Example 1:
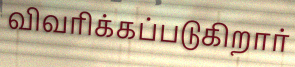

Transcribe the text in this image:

விவரிக்கப்படுகிறார்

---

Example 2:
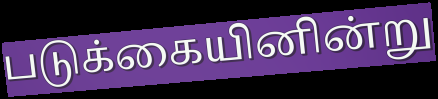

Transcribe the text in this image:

படுக்கையினின்று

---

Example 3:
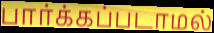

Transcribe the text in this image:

பார்க்கப்படாமல்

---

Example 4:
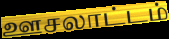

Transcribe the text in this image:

ஊசலாட்டம்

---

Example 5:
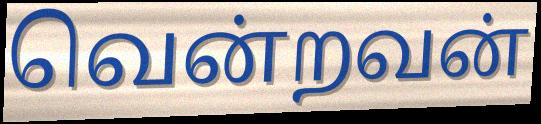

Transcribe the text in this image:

வென்றவன்